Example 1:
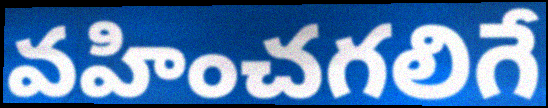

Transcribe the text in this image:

వహించగలిగే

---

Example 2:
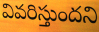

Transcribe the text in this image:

వివరిస్తుందని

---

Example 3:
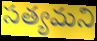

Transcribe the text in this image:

సత్యమని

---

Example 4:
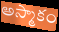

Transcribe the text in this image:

అస్మాకం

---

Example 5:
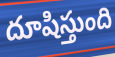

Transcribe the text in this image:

దూషిస్తుంది